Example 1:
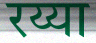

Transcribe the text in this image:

रय्या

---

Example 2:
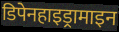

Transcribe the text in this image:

डिपेनहाइड्रामाइन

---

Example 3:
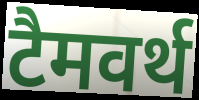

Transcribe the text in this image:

टैमवर्थ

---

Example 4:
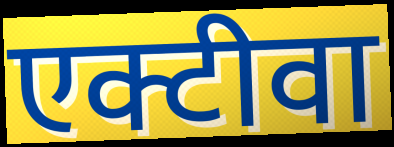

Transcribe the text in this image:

एक्टीवा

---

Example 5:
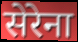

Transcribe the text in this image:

सेरेना